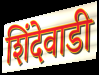
शिंदेवाडी